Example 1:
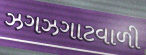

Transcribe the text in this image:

ઝગઝગાટવાળી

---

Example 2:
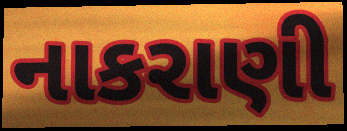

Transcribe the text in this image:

નાકરાણી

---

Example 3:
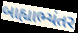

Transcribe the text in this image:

બાહ્યાભ્યંતર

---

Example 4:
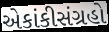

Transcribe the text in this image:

એકાંકીસંગ્રહો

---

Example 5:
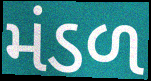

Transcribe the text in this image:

મંડળ